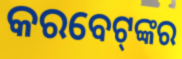
କରବେଟ୍‌ଙ୍କର